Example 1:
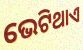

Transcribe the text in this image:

ଭେଟିଥାଏ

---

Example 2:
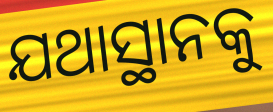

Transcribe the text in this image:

ଯଥାସ୍ଥାନକୁ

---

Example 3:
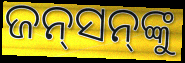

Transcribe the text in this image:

ଜନ୍‍ସନ୍‍ଙ୍କୁ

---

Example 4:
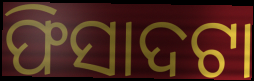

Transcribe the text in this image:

ଫିସାଦଟା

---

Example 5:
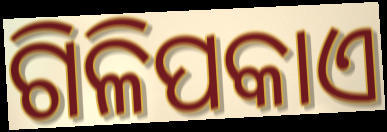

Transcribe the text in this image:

ଗିଳିପକାଏ